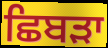
ਛਿਬੜਾ